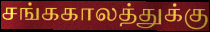
சங்ககாலத்துக்கு